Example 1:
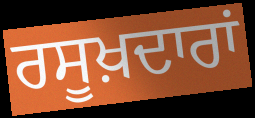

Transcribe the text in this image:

ਰਸੂਖ਼ਦਾਰਾਂ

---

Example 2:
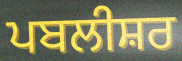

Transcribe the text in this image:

ਪਬਲੀਸ਼ਰ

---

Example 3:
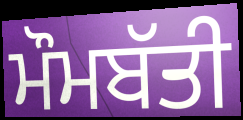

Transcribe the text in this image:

ਮੌਮਬੱਤੀ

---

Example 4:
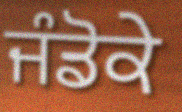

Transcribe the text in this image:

ਜੰਡੋਕੇ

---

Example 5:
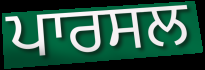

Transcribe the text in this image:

ਪਾਰਸਲ